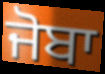
ਜੋਬਾ